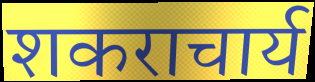
शकराचार्य